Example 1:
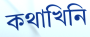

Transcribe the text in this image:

কথাখিনি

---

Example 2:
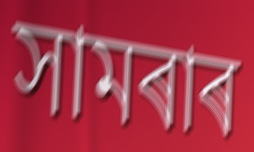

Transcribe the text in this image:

সামৰাৰ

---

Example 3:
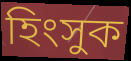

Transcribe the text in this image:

হিংসুক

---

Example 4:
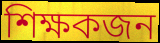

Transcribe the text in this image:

শিক্ষকজন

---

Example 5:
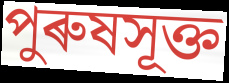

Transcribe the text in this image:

পুৰুষসূক্ত